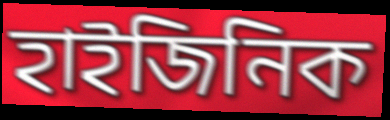
হাইজিনিক